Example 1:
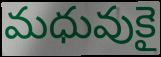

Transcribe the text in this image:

మధువుకై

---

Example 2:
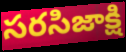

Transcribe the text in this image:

సరసిజాక్షి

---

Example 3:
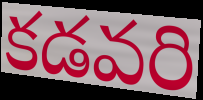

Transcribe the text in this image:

కడవరి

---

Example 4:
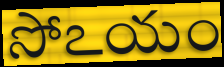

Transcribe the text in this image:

సోఽయం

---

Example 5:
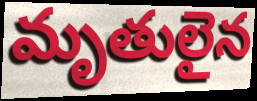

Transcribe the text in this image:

మృతులైన